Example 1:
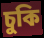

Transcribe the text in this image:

চুকি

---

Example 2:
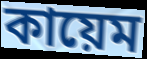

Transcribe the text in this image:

কায়েম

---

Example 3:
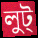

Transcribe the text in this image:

লুট্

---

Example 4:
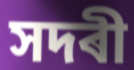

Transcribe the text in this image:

সদৰী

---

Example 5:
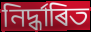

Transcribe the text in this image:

নিৰ্দ্ধাৰিত